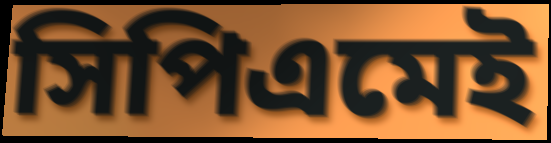
সিপিএমেই